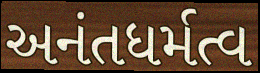
અનંતધર્મત્વ